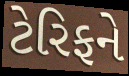
ટેરિફને